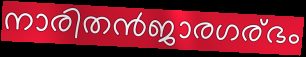
നാരിതൻജാരഗര്ഭം